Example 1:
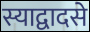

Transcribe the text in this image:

स्याद्वादसे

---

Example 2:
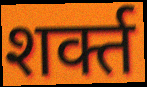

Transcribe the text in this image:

शर्क्त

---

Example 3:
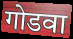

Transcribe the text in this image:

गोडवा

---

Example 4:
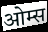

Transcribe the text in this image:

ओम्स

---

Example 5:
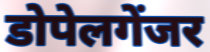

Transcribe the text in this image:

डोपेलगेंजर